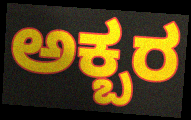
ಅಕ್ಬರ